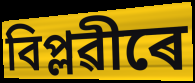
বিপ্লৱীৰে